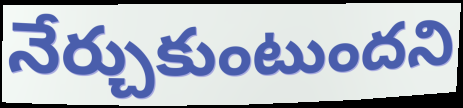
నేర్చుకుంటుందని